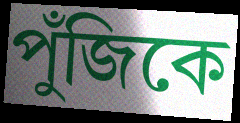
পুঁজিকে